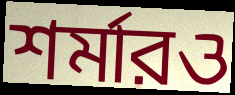
শর্মারও